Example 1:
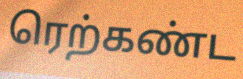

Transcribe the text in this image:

ரெற்கண்ட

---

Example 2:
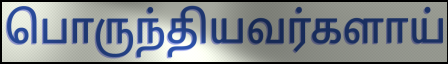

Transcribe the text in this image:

பொருந்தியவர்களாய்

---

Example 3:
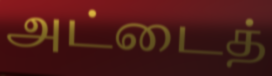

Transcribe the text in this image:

அட்டைத்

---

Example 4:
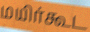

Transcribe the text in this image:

மயிர்கூட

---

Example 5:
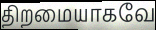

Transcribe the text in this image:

திறமையாகவே